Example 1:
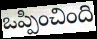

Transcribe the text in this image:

ఒప్పించింది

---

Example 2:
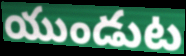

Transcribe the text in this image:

యుండుట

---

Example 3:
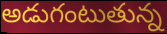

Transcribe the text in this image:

అడుగంటుతున్న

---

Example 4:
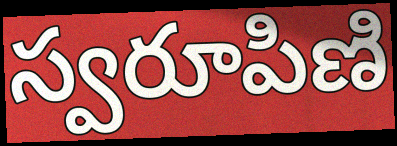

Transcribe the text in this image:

స్వరూపిణి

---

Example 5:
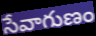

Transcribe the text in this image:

సేవాగుణం